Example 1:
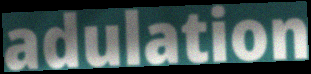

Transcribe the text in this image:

adulation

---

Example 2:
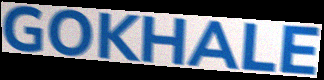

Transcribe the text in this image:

GOKHALE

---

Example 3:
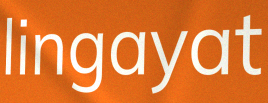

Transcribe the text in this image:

lingayat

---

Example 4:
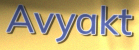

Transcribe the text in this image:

Avyakt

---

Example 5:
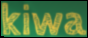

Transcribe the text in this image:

kiwa